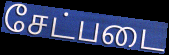
சேட்படை